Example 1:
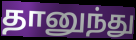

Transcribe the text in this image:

தானுந்து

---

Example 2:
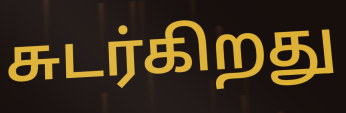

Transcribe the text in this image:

சுடர்கிறது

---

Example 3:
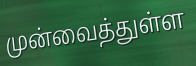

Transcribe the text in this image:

முன்வைத்துள்ள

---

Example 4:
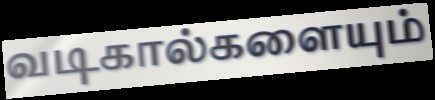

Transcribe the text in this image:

வடிகால்களையும்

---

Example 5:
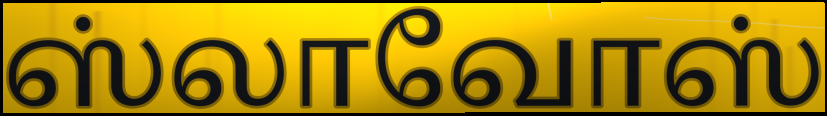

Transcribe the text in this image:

ஸ்லாவோஸ்